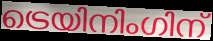
ട്രെയിനിംഗിന്